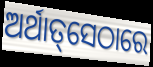
ଅର୍ଥାତ୍‌ସେଠାରେ